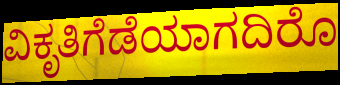
ವಿಕೃತಿಗೆಡೆಯಾಗದಿರೊ